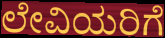
ಲೇವಿಯರಿಗೆ